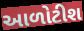
આળોટીશ